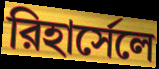
রিহার্সেলে